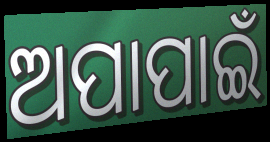
ଅପାପାଇଁ